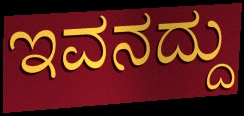
ಇವನದ್ದು